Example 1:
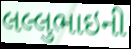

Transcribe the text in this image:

લલ્લુભાઇની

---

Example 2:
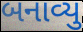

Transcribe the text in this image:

બનાવ્યુ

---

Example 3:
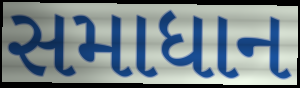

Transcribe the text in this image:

સમાધાન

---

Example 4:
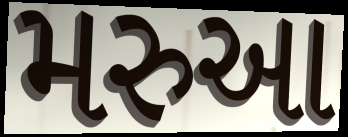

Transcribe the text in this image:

મરુઆ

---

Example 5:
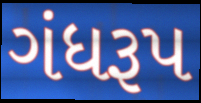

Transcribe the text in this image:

ગંધરૂપ